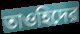
তাওহিদের